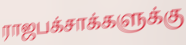
ராஜபக்சாக்களுக்கு